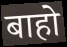
बाहो